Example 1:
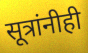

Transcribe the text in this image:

सूत्रांनीही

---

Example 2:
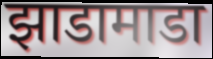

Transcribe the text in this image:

झाडामाडा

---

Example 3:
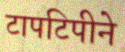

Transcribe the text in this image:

टापटिपीने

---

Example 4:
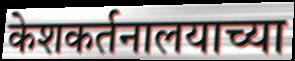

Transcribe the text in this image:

केशकर्तनालयाच्या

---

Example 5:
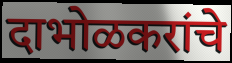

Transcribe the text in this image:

दाभोळकरांचे